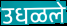
उधळले